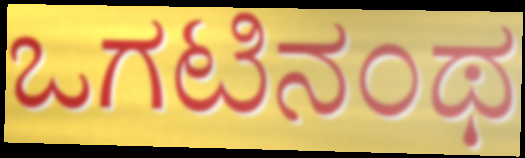
ಒಗಟಿನಂಥ